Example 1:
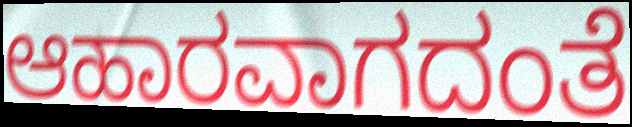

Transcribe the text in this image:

ಆಹಾರವಾಗದಂತೆ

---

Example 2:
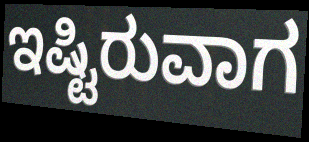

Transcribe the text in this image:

ಇಷ್ಟಿರುವಾಗ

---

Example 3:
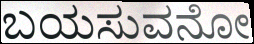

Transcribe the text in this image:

ಬಯಸುವನೋ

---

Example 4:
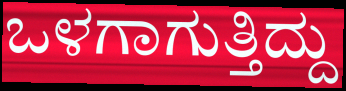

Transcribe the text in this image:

ಒಳಗಾಗುತ್ತಿದ್ದು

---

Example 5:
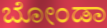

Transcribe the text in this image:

ಬೋಂಡಾ